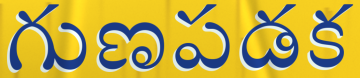
గుణపడక